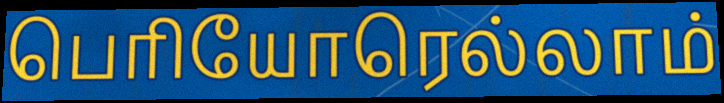
பெரியோரெல்லாம்